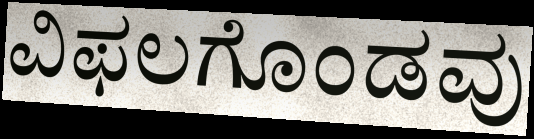
ವಿಫಲಗೊಂಡವು